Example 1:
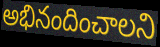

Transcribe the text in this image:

అభినందించాలని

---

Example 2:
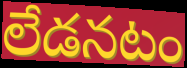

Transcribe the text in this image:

లేడనటం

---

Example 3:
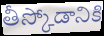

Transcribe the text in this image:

తీస్కోడానికి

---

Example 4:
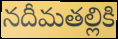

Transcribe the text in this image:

నదీమతల్లికి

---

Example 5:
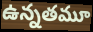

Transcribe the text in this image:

ఉన్నతమూ